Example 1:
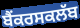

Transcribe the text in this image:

ਬੈਂਕਰਸਕਲੱਬ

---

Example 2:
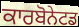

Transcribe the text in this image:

ਕਾਰਬੋਨੇਟਡ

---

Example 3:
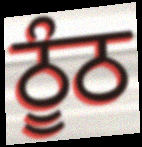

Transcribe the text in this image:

ਠੂੰਠ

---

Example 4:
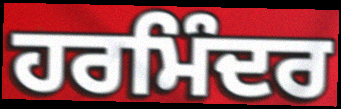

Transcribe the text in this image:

ਹਰਮਿੰਦਰ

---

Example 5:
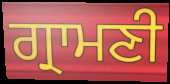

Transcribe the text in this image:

ਗ੍ਰਾਮਣੀ